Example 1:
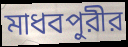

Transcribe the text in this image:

মাধবপুরীর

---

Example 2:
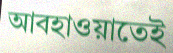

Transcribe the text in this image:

আবহাওয়াতেই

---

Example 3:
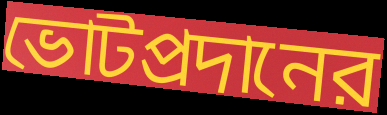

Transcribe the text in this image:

ভোটপ্রদানের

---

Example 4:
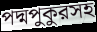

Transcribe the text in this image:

পদ্মপুকুরসহ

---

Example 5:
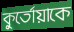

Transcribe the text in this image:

কুর্তোয়াকে